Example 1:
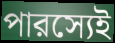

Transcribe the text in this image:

পারস্যেই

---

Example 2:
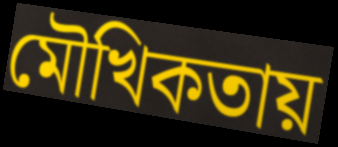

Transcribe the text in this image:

মৌখিকতায়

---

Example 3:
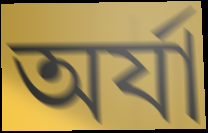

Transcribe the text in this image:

অর্যা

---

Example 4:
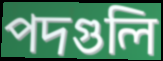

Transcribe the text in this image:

পদগুলি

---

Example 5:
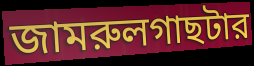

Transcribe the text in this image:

জামরুলগাছটার